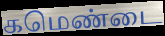
கமெண்டை